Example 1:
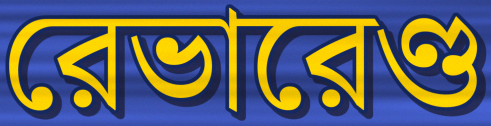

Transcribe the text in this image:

রেভারেণ্ড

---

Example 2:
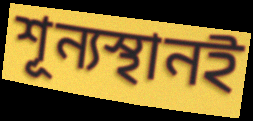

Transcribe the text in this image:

শূন্যস্থানই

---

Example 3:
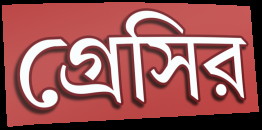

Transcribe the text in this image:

গ্রেসির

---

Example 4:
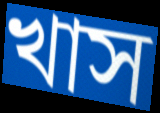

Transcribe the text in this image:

খাস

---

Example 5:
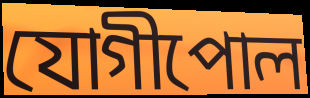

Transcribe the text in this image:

যোগীপোল